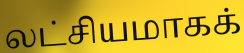
லட்சியமாகக்